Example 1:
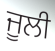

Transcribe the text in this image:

ਜੂਲੀ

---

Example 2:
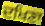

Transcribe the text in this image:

ਦਖਿਣਾ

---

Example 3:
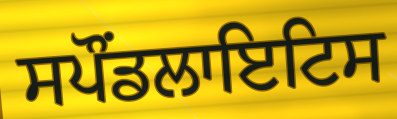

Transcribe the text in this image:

ਸਪੌਂਡਲਾਇਟਿਸ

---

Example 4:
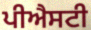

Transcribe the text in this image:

ਪੀਐਸਟੀ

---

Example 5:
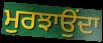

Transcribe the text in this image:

ਮੁਰਝਾਉਂਦਾ